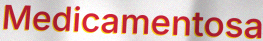
Medicamentosa